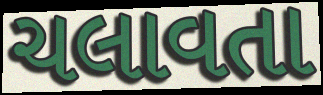
ચલાવતા